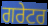
ਗਰੇਟਰ